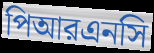
পিআরএনসি